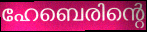
ഹേബെരിന്റെ